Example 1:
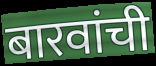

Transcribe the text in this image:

बारवांची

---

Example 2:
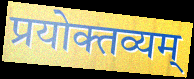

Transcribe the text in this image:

प्रयोक्तव्यम्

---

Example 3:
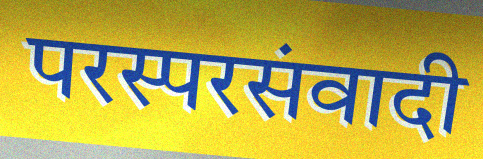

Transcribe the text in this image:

परस्परसंवादी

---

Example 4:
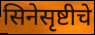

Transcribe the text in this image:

सिनेसृष्टीचे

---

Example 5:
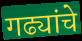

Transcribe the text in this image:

गढ्यांचे